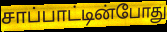
சாப்பாட்டின்போது